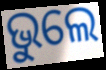
ଭୁଲେ